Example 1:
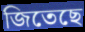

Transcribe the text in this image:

জিতেছে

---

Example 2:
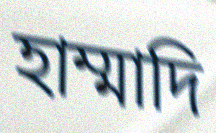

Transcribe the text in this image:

হাম্মাদি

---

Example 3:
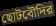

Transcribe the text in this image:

ছোটবৌদির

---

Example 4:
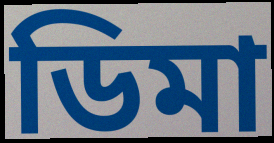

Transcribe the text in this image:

ডিমা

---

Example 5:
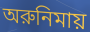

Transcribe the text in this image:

অরুনিমায়